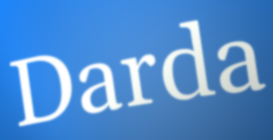
Darda